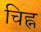
चिह्न